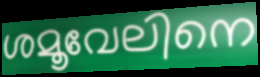
ശമൂവേലിനെ